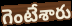
గెంటేశారు